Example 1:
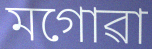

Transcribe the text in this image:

মগোৱা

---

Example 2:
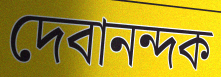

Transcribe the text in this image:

দেবানন্দক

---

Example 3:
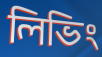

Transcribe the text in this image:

লিভিং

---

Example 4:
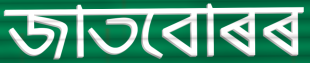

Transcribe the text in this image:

জাতবোৰৰ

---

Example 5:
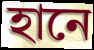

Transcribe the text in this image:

হানে